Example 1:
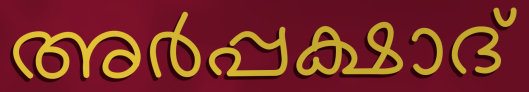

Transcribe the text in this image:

അർപ്പക്ഷാദ്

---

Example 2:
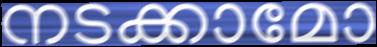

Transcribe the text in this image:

നടക്കാമോ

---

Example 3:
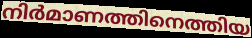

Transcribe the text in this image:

നിർമാണത്തിനെത്തിയ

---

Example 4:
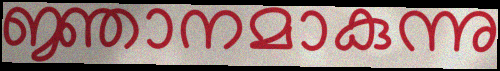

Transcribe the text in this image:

ജ്ഞാനമാകുന്നു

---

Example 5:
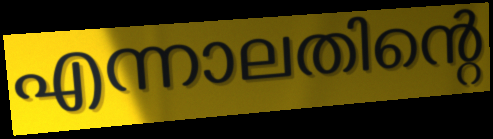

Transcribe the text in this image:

എന്നാലതിന്റെ